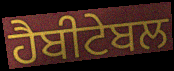
ਹੈਬੀਟੇਬਲ